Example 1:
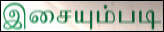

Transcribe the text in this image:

இசையும்படி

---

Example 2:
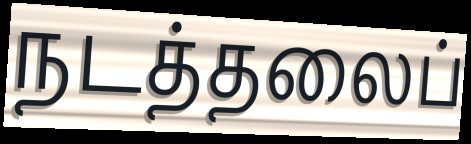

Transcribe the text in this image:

நடத்தலைப்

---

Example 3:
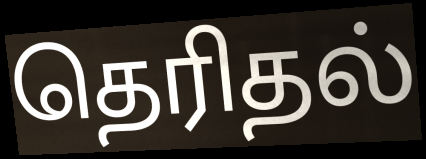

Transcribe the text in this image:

தெரிதல்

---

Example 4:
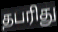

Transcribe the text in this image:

தபரிது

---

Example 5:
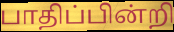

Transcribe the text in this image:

பாதிப்பின்றி